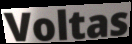
Voltas